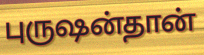
புருஷன்தான்